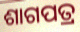
ଶାଗପତ୍ର